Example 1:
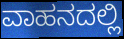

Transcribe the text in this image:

ವಾಹನದಲ್ಲಿ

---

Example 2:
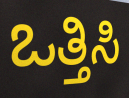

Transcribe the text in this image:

ಒತ್ತಿಸಿ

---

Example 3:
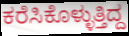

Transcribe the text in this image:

ಕರೆಸಿಕೊಳ್ಳುತ್ತಿದ್ದ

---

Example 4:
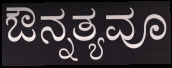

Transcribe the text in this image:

ಔನ್ನತ್ಯವೂ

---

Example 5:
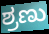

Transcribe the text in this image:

ಶ್ರಣು